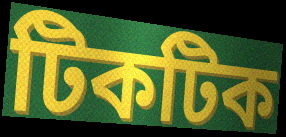
টিকটিক